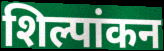
शिल्पांकन